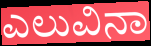
ಎಲುವಿನಾ